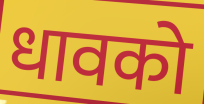
धावको